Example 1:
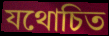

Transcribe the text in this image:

যথোচিত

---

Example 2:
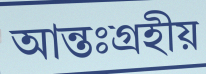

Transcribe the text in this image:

আন্তঃগ্রহীয়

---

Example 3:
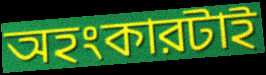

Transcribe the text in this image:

অহংকারটাই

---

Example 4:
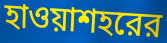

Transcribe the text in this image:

হাওয়াশহরের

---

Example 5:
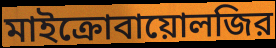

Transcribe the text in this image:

মাইক্রোবায়োলজির